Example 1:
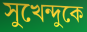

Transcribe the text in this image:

সুখেন্দুকে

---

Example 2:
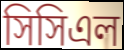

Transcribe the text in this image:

সিসিএল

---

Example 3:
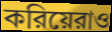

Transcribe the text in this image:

করিয়েরাও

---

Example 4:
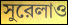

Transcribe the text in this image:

সুরেলাও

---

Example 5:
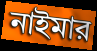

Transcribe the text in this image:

নাইমার